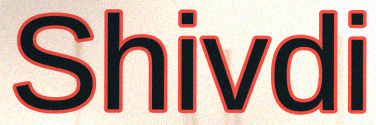
Shivdi